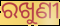
ରଖୁଣୀ